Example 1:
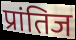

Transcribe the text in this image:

प्रांतिज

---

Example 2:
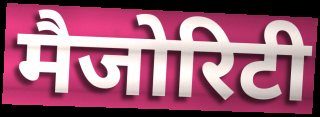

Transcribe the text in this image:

मैजोरिटी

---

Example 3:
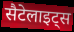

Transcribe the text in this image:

सैटेलाइट्स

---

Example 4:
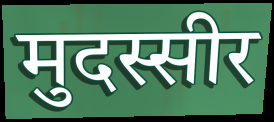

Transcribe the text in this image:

मुदस्सीर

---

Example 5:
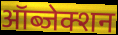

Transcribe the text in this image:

ऑब्जेक्शन